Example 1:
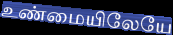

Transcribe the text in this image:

உண்மையிலேயே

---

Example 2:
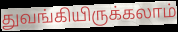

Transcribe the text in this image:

துவங்கியிருக்கலாம்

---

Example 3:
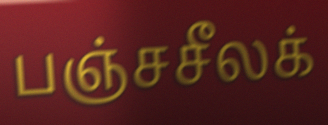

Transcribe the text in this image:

பஞ்சசீலக்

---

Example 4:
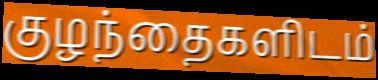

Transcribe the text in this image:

குழந்தைகளிடம்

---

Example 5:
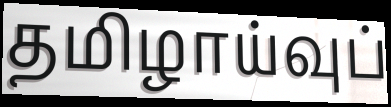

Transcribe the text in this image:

தமிழாய்வுப்